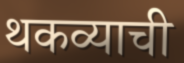
थकव्याची